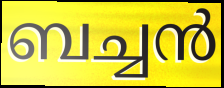
ബച്ചൻ